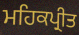
ਮਹਿਕਪ੍ਰੀਤ